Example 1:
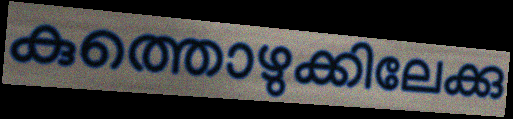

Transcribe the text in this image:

കുത്തൊഴുക്കിലേക്കു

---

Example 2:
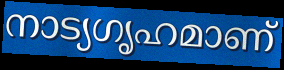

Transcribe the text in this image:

നാട്യഗൃഹമാണ്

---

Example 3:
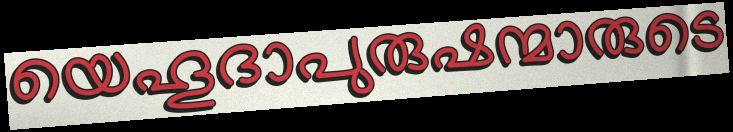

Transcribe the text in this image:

യെഹൂദാപുരുഷന്മാരുടെ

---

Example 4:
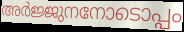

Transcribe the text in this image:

അർജ്ജുനനോടൊപ്പം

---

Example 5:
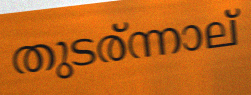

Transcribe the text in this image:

തുടര്ന്നാല്